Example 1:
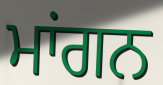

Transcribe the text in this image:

ਮਾਂਗਨ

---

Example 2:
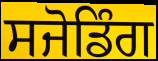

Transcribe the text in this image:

ਸਜੋਡਿੰਗ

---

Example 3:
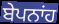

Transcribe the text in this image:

ਬੇਪਨਾਂਹ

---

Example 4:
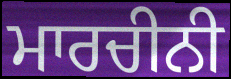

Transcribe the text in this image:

ਮਾਰਚੀਨੀ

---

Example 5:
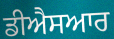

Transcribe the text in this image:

ਡੀਐਸਆਰ